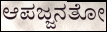
ಆಪಜ್ಜನತೋ